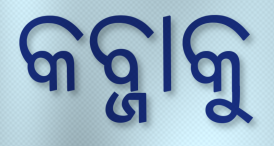
କବ୍ଜାକୁ